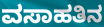
ವಸಾಹತಿನ